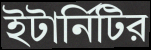
ইটার্নিটির